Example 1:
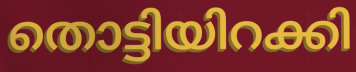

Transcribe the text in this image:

തൊട്ടിയിറക്കി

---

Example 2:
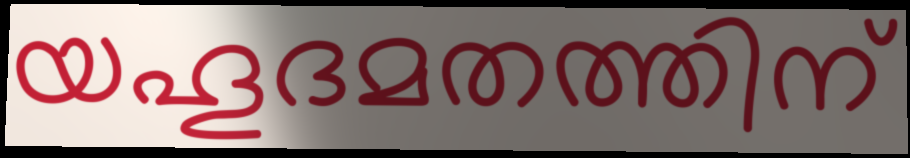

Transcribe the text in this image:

യഹൂദമതത്തിന്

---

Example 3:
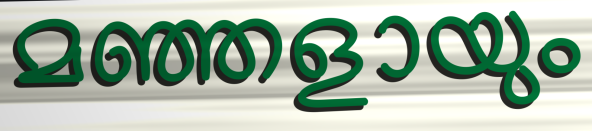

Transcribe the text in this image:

മഞ്ഞളായും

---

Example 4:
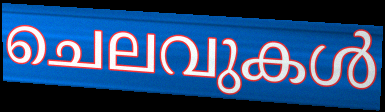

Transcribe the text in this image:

ചെലവുകൾ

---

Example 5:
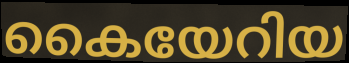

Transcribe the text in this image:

കൈയേറിയ